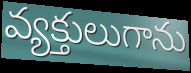
వ్యక్తులుగాను